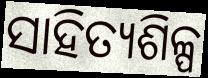
ସାହିତ୍ୟଶିଳ୍ପ